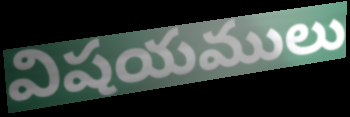
విషయములు